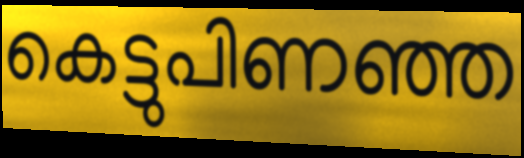
കെട്ടുപിണഞ്ഞ